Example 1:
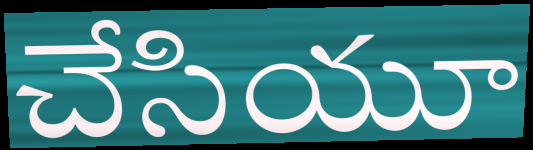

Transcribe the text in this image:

చేసియూ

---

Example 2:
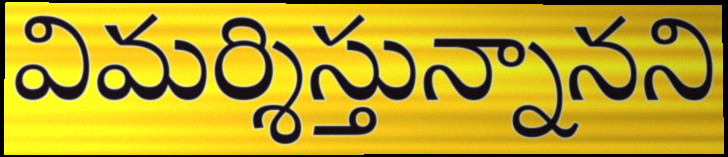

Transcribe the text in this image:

విమర్శిస్తున్నానని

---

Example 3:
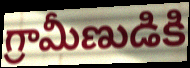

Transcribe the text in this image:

గ్రామీణుడికి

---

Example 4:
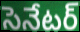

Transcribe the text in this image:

సెనేటర్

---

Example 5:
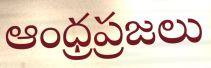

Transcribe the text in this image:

ఆంధ్రప్రజలు